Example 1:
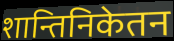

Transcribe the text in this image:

शान्तिनिकेतन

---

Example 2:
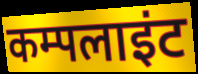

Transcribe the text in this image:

कम्पलाइंट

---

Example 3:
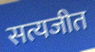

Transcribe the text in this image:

सत्यजीत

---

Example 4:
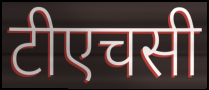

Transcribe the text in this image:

टीएचसी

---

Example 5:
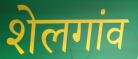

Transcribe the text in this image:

शेलगांव